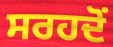
ਸਰਹਦੋਂ